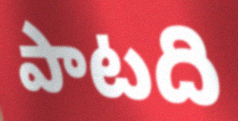
పాటది